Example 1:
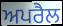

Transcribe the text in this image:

ਅਪਰੈਲ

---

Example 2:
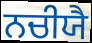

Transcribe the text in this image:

ਨਚੀਯੈ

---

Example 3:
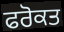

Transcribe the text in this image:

ਫਰੋਕਤ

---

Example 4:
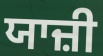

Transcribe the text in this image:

ਯਾਜ਼ੀ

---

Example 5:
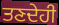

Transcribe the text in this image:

ਤਣਦੇਹੀ